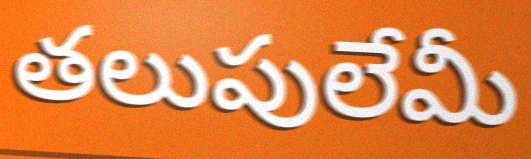
తలుపులేమీ